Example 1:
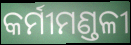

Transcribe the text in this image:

କର୍ମୀମଣ୍ଡଳୀ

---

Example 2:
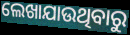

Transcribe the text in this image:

ଲେଖାଯାଉଥିବାରୁ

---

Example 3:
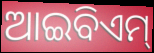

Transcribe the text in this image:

ଆଇବିଏମ୍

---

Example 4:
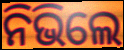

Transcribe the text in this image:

ନିଭିଲେ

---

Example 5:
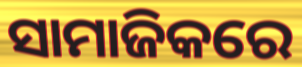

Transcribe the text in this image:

ସାମାଜିକରେ